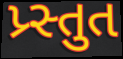
પ્ર્સ્તુત